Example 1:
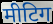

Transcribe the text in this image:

मीटिग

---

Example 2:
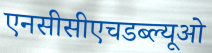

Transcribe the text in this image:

एनसीसीएचडब्ल्यूओ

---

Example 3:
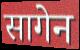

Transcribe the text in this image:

सागेन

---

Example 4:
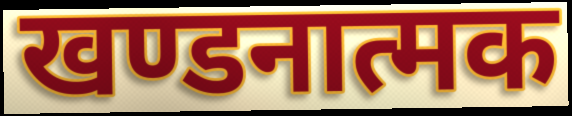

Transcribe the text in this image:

खण्डनात्मक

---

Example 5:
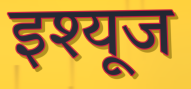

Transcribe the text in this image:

इश्यूज